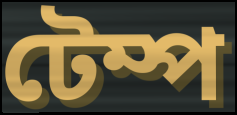
টেম্প